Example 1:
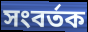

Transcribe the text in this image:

সংবর্তক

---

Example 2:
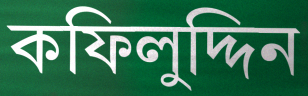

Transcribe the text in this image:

কফিলুদ্দিন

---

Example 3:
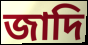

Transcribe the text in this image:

জাদি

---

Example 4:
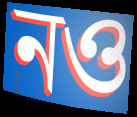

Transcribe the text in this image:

নও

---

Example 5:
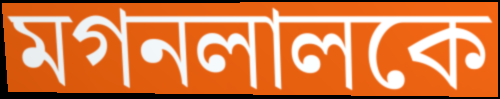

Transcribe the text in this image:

মগনলালকে